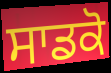
ਸਾਡਕੋ